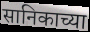
सानिकाच्या